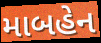
માબહેન